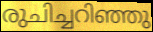
രുചിച്ചറിഞ്ഞു